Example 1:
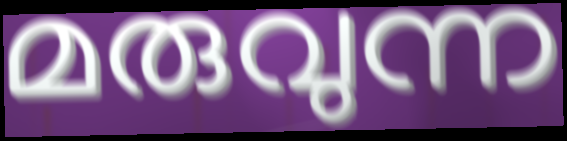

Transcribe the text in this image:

മരുവുന്ന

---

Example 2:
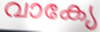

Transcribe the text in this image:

വാക്യേ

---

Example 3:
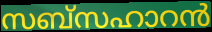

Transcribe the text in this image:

സബ്സഹാറൻ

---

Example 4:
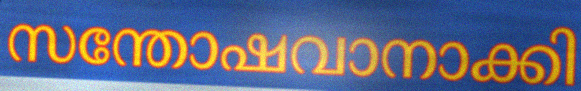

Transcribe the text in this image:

സന്തോഷവാനാക്കി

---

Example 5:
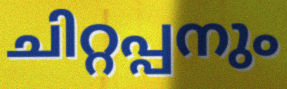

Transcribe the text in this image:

ചിറ്റപ്പനും